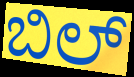
ಬಿಲ್